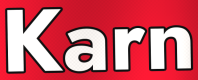
Karn